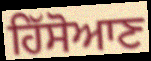
ਹਿੱਸੋਆਣ